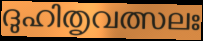
ദുഹിതൃവത്സലഃ